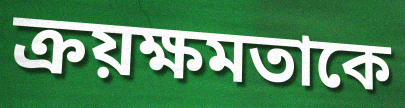
ক্রয়ক্ষমতাকে